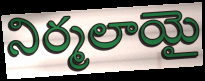
నిర్మలాయై